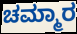
ಚಮ್ಮಾರ